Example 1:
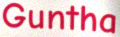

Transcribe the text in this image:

Guntha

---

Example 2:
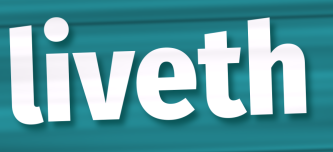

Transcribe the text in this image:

liveth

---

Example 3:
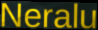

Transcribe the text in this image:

Neralu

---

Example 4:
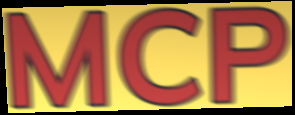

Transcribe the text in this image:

MCP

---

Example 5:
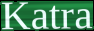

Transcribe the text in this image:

Katra